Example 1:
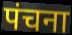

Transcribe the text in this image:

पंचना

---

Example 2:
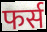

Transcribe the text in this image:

फर्स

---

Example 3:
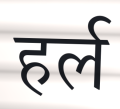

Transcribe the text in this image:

हर्ल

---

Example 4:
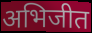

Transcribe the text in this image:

अभिजीत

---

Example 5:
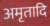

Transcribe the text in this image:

अमृतादि